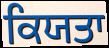
ਕਿਯਤਾ